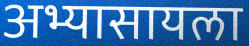
अभ्यासायला